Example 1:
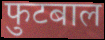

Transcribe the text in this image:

फुटबाल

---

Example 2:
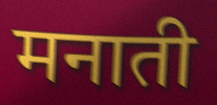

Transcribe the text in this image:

मनाती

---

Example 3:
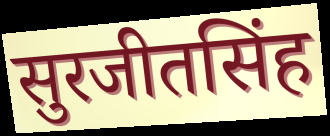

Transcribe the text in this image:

सुरजीतसिंह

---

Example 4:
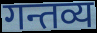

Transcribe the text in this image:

गन्तव्य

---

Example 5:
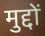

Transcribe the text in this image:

मुद्दों